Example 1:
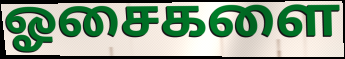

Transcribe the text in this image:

ஓசைகளை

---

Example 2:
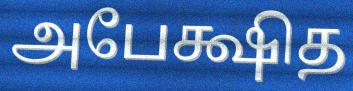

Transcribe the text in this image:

அபேக்ஷித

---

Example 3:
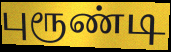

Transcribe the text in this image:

புரூண்டி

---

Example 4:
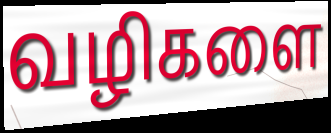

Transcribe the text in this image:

வழிகளை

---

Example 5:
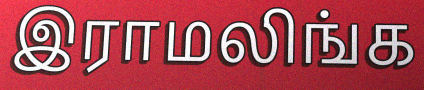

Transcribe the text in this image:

இராமலிங்க